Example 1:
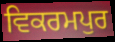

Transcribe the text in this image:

ਵਿਕਰਮਪੁਰ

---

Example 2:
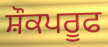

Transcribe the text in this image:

ਸ਼ੌਕਪਰੂਫ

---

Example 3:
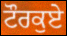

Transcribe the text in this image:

ਟੌਰਕੁਏ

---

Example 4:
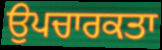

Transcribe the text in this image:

ਉਪਚਾਰਕਤਾ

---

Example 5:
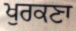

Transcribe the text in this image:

ਖੁਰਕਣਾ